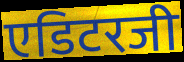
एडिटरजी